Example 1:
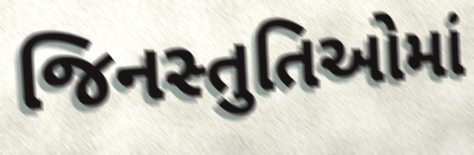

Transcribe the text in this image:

જિનસ્તુતિઓમાં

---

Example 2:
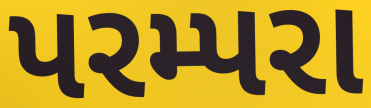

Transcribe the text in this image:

પરમ્પરા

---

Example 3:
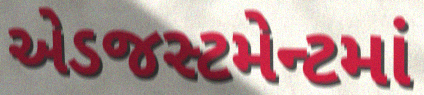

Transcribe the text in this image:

એડજસ્ટમેન્ટમાં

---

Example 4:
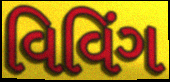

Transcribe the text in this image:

વિવિંગ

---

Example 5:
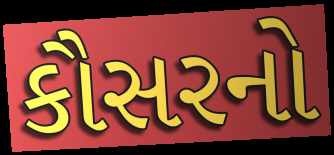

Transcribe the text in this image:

કૌસરનો